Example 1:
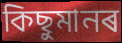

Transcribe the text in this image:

কিছুমানৰ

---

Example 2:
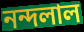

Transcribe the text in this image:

নন্দলাল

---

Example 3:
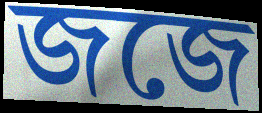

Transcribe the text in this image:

জজে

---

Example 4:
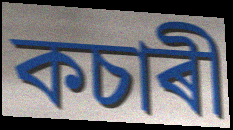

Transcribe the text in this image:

কচাৰী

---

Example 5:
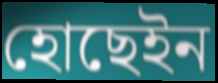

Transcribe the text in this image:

হোছেইন